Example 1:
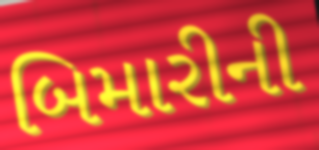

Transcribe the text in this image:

બિમારીની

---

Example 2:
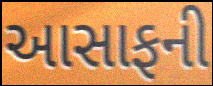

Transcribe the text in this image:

આસાફની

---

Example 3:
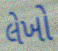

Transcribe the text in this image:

લેખો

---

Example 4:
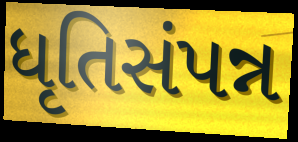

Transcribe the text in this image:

ધૃતિસંપન્ન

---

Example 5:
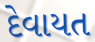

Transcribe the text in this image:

દેવાયત